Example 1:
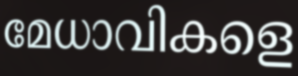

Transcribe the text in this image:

മേധാവികളെ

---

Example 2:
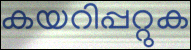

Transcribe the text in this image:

കയറിപ്പറ്റുക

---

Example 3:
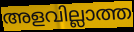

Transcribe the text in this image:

അളവില്ലാത്ത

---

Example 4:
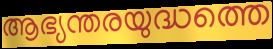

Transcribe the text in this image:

ആഭ്യന്തരയുദ്ധത്തെ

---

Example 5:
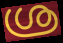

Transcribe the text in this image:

ശ്ര